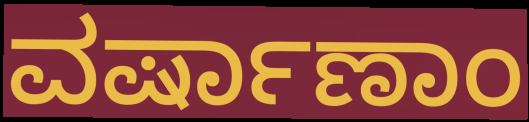
ವರ್ಷಾಣಾಂ